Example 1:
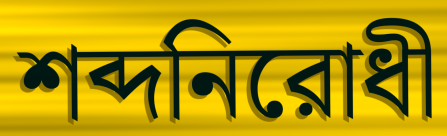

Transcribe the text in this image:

শব্দনিরোধী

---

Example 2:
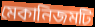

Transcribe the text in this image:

মেকানিজমটি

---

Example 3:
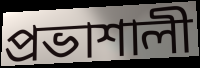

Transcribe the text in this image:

প্রভাশালী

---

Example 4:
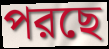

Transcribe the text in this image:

পরছে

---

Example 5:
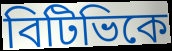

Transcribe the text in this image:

বিটিভিকে